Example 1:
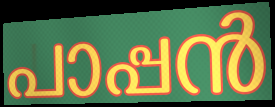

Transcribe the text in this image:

പാപ്പൻ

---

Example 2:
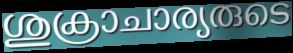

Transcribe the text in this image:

ശുക്രാചാര്യരുടെ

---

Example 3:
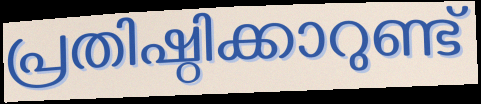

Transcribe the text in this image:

പ്രതിഷ്ഠിക്കാറുണ്ട്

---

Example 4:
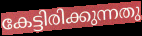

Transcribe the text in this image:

കേട്ടിരിക്കുന്നതു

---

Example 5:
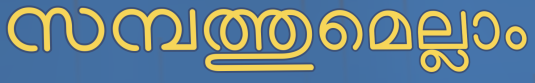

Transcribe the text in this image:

സമ്പത്തുമെല്ലാം